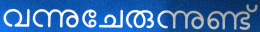
വന്നുചേരുന്നുണ്ട്